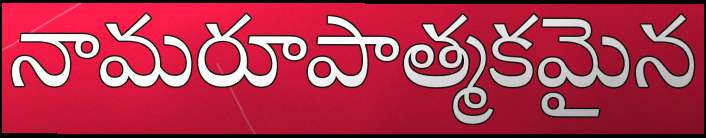
నామరూపాత్మకమైన